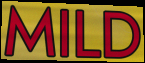
MILD